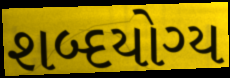
શબ્દયોગ્ય